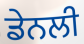
ਡੇਨਲੀ